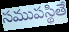
సముపస్థితే